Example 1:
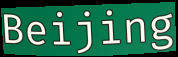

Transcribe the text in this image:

Beijing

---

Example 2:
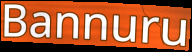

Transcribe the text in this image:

Bannuru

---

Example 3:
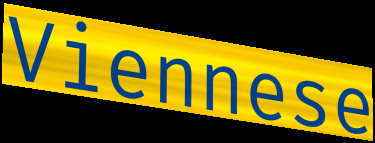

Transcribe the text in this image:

Viennese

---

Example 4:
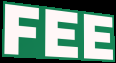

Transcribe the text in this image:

FEE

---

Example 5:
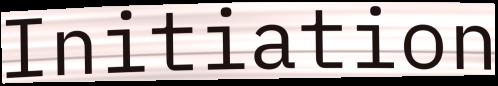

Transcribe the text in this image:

Initiation